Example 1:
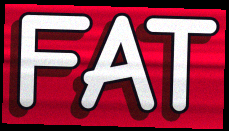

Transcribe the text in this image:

FAT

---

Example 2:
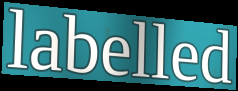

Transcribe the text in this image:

labelled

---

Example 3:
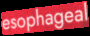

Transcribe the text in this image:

esophageal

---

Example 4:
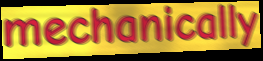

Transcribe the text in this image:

mechanically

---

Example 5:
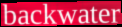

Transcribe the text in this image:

backwater